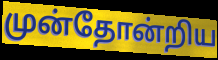
முன்தோன்றிய